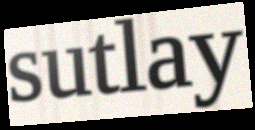
sutlay